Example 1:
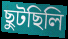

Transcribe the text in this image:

ছুটছিলি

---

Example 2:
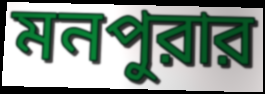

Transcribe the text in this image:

মনপুরার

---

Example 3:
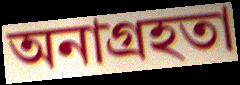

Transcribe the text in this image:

অনাগ্রহতা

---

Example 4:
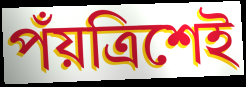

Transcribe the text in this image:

পঁয়ত্রিশেই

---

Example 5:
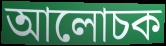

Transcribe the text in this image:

আলোচক